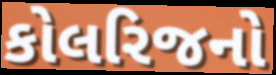
કોલરિજનો